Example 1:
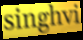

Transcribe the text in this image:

singhvi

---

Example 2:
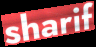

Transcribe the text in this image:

sharif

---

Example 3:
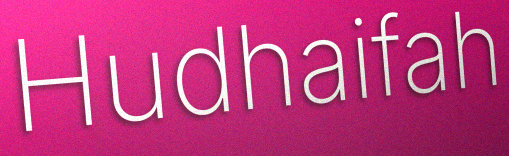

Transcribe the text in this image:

Hudhaifah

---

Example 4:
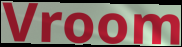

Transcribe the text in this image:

Vroom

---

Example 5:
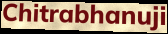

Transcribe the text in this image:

Chitrabhanuji